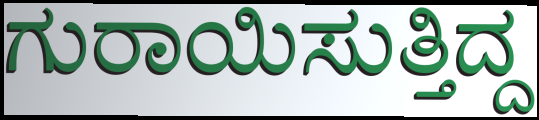
ಗುರಾಯಿಸುತ್ತಿದ್ದ